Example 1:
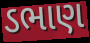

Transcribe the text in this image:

ડભાણ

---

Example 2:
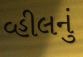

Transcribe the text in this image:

વ્હીલનું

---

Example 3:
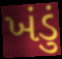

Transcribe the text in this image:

ખંડું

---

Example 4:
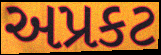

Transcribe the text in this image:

અપ્રકટ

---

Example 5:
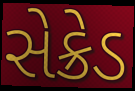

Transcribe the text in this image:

સેક્રેડ